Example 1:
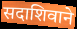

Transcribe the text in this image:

सदाशिवाने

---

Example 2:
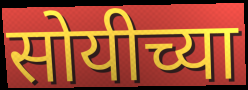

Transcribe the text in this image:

सोयीच्या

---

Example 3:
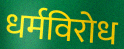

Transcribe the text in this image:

धर्मविरोध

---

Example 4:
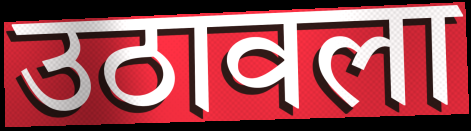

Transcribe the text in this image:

उठावला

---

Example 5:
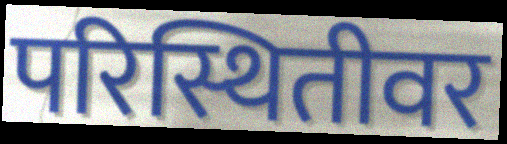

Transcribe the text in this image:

परिस्थितीवर